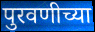
पुरवणीच्या